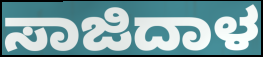
ಸಾಜಿದಾಳ